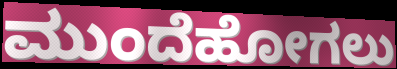
ಮುಂದೆಹೋಗಲು